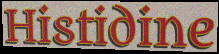
Histidine